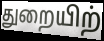
துறையிற்